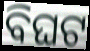
ବିଘଟ